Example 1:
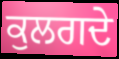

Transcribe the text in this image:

ਕੁਲਗਦੇ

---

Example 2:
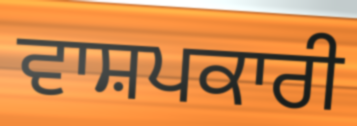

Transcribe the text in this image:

ਵਾਸ਼ਪਕਾਰੀ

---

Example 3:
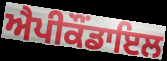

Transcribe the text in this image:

ਐਪੀਕੌਂਡਾਇਲ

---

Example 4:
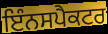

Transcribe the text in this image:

ਇੰਨਸਪੈਕਟਰ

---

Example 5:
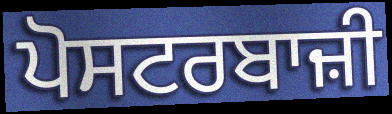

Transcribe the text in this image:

ਪੋਸਟਰਬਾਜ਼ੀ